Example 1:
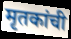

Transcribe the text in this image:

मृतकांची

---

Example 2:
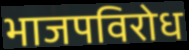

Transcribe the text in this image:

भाजपविरोध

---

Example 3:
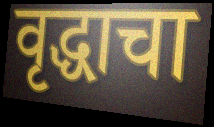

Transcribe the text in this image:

वृद्धाचा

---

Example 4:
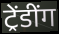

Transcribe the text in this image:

ट्रेंडींग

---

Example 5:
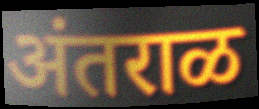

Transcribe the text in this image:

अंतराळ